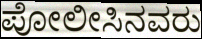
ಪೋಲೀಸಿನವರು